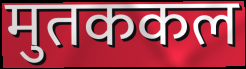
मुतककल